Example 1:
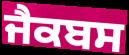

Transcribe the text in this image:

ਜੈਕਬਸ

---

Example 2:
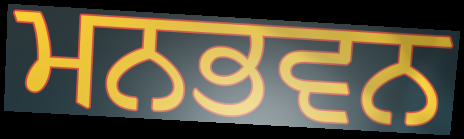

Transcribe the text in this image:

ਮਨਭਵਨ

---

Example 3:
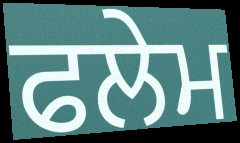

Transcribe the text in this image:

ਫਲੇਮ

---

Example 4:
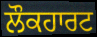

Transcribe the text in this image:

ਲੌਕਹਾਰਟ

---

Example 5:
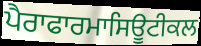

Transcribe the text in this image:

ਪੈਰਾਫਾਰਮਾਸਿਊਟੀਕਲ